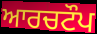
ਆਰਚਟੌਪ